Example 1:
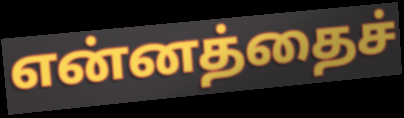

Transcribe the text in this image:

என்னத்தைச்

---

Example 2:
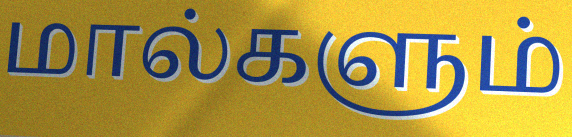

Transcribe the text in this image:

மால்களும்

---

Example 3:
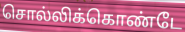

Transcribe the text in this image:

சொல்லிக்கொண்டே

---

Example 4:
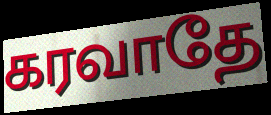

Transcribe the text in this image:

கரவாதே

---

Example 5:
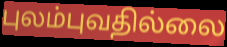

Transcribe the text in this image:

புலம்புவதில்லை